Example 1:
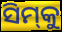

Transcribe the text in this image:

ସିମ୍‌କୁ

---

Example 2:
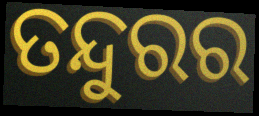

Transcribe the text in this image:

ତନ୍ଦୁରର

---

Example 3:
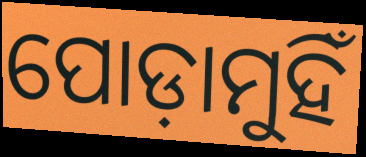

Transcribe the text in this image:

ପୋଡ଼ାମୁହିଁ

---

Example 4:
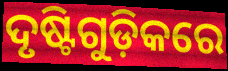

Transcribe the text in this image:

ଦୃଷ୍ଟିଗୁଡ଼ିକରେ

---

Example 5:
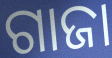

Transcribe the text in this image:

ଗାଜା